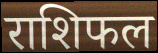
राशिफल